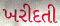
ખરીદતી